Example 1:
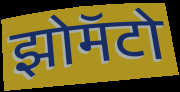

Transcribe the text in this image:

झोमॅटो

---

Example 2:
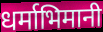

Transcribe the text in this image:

धर्माभिमानी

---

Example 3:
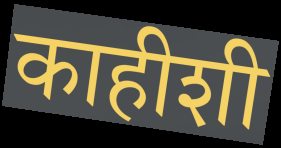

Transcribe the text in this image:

काहीशी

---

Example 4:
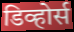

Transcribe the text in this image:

डिव्होर्स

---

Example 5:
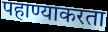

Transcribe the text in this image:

पहाण्याकरता